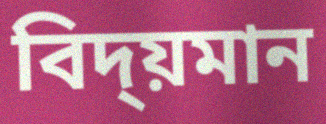
বিদ্য়মান